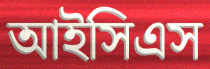
আইসিএস